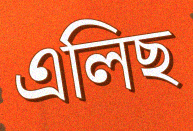
এলিছ